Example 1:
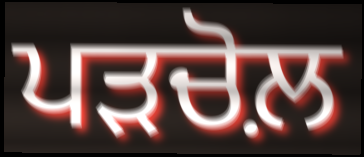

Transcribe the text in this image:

ਪੜਚੋਲ਼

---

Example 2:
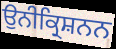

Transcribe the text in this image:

ਉਨੀਕ੍ਰਿਸ਼ਨਨ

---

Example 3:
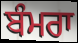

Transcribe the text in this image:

ਬੰਮਰਾ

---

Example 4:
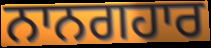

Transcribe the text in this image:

ਨਾਨਗਹਾਰ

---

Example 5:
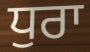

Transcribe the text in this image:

ਧੁਰਾ